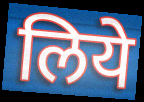
लिये